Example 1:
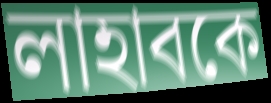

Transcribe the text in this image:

লাহাবকে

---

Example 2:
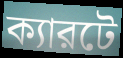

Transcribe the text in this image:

ক্যারটে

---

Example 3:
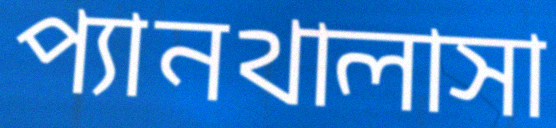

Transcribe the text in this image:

প্যানথালাসা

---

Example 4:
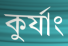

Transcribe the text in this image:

কুর্যাং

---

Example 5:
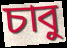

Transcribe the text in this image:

চাবু